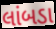
લાંબડા